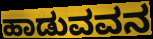
ಹಾಡುವವನ